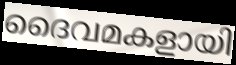
ദൈവമകളായി